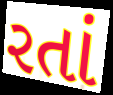
રતાં